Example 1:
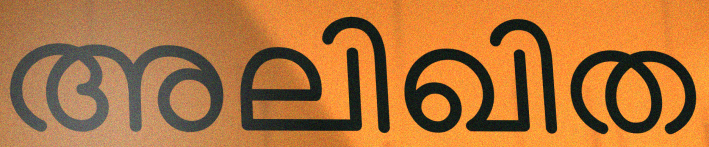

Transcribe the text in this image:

അലിഖിത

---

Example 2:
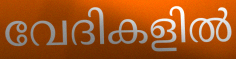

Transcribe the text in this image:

വേദികളിൽ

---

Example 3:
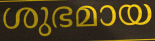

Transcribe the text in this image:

ശുഭമായ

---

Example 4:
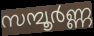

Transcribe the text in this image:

സമ്പൂർണ്ണ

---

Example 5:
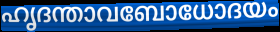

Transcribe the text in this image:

ഹൃദന്താവബോധോദയം